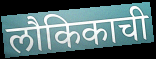
लौकिकाची